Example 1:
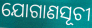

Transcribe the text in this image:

ଯୋଗାଣସୂଚୀ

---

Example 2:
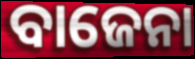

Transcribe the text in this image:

ବାଜେନା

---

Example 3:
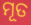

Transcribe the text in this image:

ମୂତ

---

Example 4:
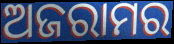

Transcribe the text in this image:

ଅଜରାମର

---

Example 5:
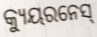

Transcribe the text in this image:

କ୍ୟୁୟରନେସ୍